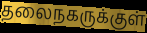
தலைநகருக்குள்